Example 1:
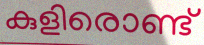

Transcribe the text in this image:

കുളിരൊണ്ട്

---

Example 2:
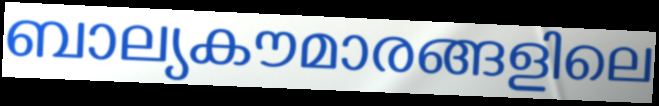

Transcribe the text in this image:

ബാല്യകൗമാരങ്ങളിലെ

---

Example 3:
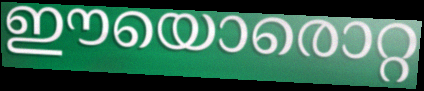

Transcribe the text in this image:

ഈയൊരൊറ്റ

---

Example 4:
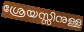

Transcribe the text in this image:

ശ്രേയസ്സിനുള്ള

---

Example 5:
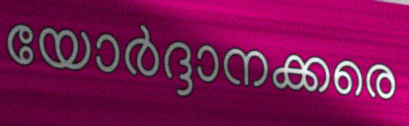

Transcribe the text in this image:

യോർദ്ദാനക്കരെ